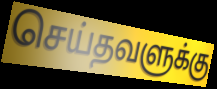
செய்தவளுக்கு